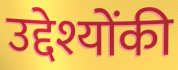
उद्देश्योंकी